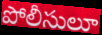
పోలీసులూ